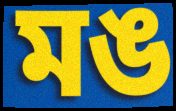
মঙ